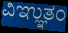
ವಿಞ್ಞುತಂ